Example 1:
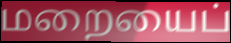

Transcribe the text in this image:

மறையைப்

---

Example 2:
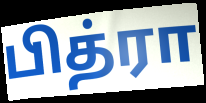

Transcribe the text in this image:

பித்ரா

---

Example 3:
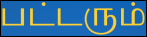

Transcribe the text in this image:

பட்டரும்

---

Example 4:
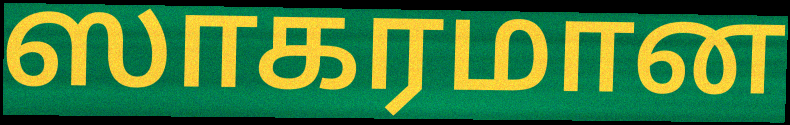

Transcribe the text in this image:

ஸாகரமான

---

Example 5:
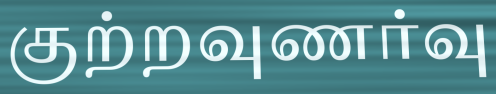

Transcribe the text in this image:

குற்றவுணர்வு